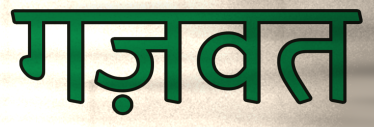
गज़वत